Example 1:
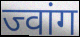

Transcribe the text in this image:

ज्वांग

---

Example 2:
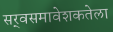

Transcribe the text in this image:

सर्वसमावेशकतेला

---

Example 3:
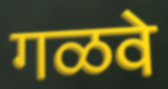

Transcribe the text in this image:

गळवे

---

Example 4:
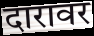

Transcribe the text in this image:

दारावर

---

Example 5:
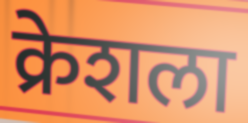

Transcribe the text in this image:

क्रेशला